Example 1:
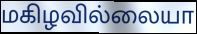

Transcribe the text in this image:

மகிழவில்லையா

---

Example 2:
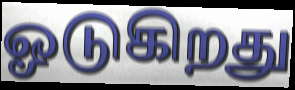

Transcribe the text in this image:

ஓடுகிறது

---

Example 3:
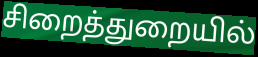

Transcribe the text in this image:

சிறைத்துறையில்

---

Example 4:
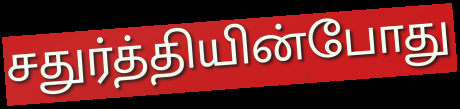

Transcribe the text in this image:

சதுர்த்தியின்போது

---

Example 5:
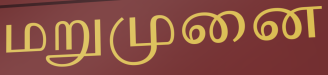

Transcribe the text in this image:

மறுமுனை